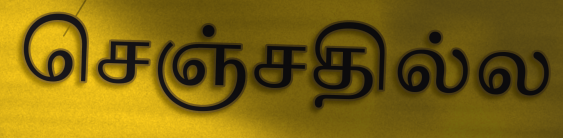
செஞ்சதில்ல